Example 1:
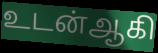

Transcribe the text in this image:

உடன்ஆகி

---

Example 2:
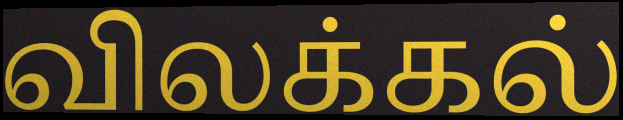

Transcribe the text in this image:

விலக்கல்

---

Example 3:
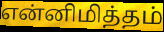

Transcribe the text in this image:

என்னிமித்தம்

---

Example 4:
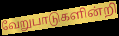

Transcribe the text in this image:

வேறுபாடுகளின்றி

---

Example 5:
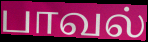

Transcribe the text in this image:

பாவல்